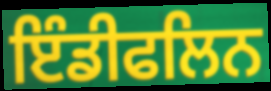
ਇੰਡੀਫਲਿਨ